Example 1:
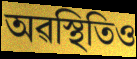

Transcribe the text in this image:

অৱস্থিতিও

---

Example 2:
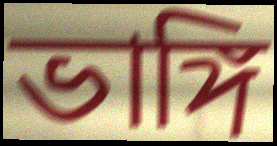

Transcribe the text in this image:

ভাঙ্গি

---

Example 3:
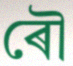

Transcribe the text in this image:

ৰৌ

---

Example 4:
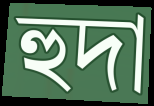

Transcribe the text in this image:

হুদা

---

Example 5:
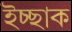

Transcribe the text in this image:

ইচ্ছাক